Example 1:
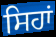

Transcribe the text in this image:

ਸਿਹਾਂ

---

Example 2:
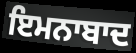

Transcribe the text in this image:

ਇਮਨਾਬਾਦ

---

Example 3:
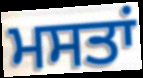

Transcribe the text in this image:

ਮਸਤਾਂ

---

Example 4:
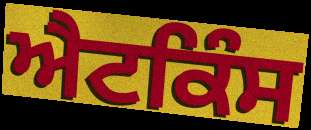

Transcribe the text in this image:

ਐਟਕਿੰਸ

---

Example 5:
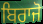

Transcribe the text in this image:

ਬਿਰਾਜੋ